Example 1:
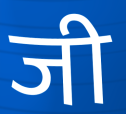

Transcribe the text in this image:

जी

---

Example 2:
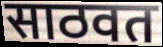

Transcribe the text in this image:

साठवत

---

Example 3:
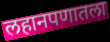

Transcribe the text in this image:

लहानपणातला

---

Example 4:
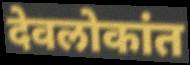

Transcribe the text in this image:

देवलोकांत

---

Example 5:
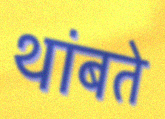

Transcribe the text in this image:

थांबते